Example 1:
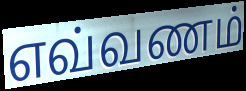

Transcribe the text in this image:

எவ்வணம்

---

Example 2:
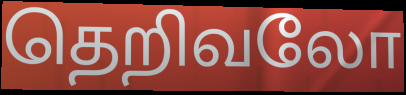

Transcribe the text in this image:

தெறிவலோ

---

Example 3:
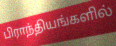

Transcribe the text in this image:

பிராந்தியங்களில்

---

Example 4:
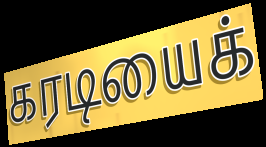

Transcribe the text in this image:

கரடியைக்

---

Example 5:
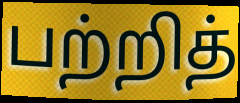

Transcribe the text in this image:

பற்றித்